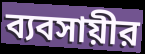
ব্যবসায়ীর